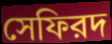
সেফিরদ